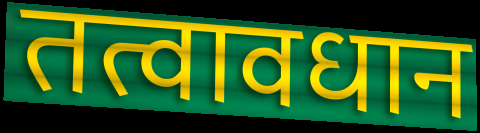
तत्‍वावधान